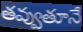
తవ్వుతూనే